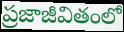
ప్రజాజీవితంలో